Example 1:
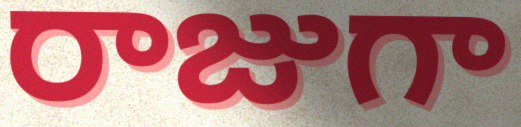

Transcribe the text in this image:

రాజుగా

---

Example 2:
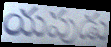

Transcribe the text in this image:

యపుడు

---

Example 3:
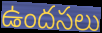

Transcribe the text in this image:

ఉందసలు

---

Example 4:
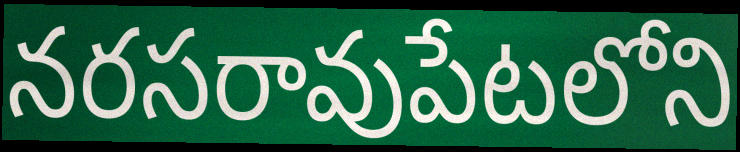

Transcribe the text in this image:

నరసరావుపేటలోని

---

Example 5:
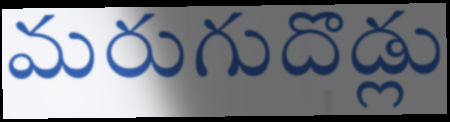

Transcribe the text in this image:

మరుగుదొడ్లు